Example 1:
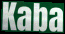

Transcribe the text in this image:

Kaba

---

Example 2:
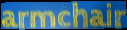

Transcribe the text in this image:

armchair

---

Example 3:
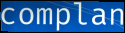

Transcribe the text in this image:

complan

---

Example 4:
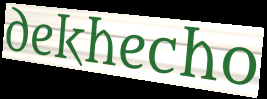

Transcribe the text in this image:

dekhecho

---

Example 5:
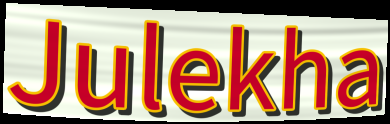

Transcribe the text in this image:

Julekha